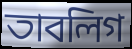
তাবলিগ